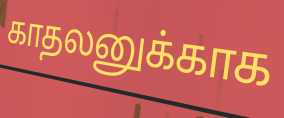
காதலனுக்காக